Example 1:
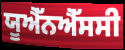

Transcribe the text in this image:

ਯੂਐੱਨਐੱਸਸੀ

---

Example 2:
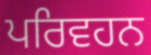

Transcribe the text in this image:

ਪਰਿਵਹਨ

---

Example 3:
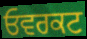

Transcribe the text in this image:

ਓਵਰਕਟ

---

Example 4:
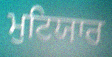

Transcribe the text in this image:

ਮੁਟਿਯਾਰ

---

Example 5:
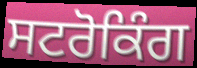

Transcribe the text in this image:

ਸਟਰੋਕਿੰਗ